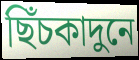
ছিঁচকাদুনে